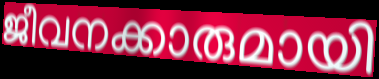
ജീവനക്കാരുമായി